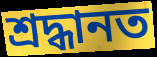
শ্রদ্ধানত